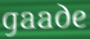
gaade